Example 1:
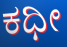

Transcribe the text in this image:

ಕಧೀ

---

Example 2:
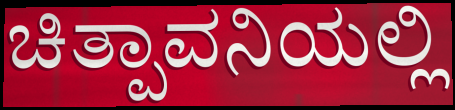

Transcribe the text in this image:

ಚಿತ್ಪಾವನಿಯಲ್ಲಿ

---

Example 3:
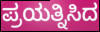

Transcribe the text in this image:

ಪ್ರಯತ್ನಿಸಿದ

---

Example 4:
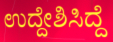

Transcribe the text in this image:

ಉದ್ದೇಶಿಸಿದ್ದೆ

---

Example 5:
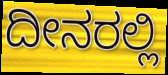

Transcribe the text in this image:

ದೀನರಲ್ಲಿ